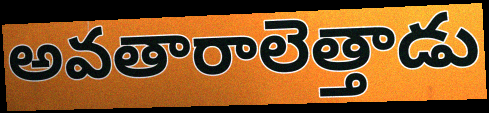
అవతారాలెత్తాడు